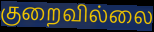
குறைவில்லை